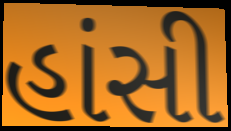
હાંસી